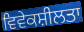
ਵਿਵੇਕਸ਼ੀਲਤਾ